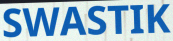
SWASTIK